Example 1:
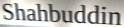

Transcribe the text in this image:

Shahbuddin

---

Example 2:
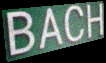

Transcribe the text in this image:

BACH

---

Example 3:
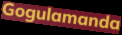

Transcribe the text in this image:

Gogulamanda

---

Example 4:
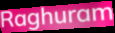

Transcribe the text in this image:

Raghuram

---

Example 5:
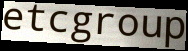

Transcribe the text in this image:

etcgroup